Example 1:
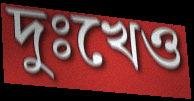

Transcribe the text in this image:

দুঃখেও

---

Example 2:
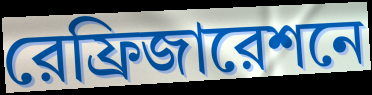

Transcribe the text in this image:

রেফ্রিজারেশনে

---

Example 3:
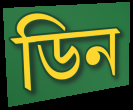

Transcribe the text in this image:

ডিন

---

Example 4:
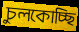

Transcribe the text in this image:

চুলকোচ্ছি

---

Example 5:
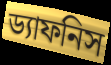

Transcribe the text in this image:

ড্যাফনিস